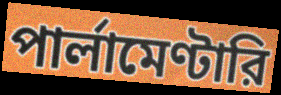
পার্লামেণ্টারি